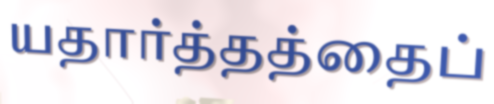
யதார்த்தத்தைப்